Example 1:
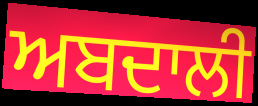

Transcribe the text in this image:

ਅਬਦਾਲੀ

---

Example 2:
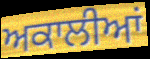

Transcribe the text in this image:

ਅਕਾਲੀਆਂ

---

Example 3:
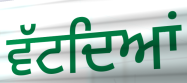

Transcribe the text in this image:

ਵੱਟਦਿਆਂ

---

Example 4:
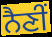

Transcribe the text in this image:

ਨੈਣੀਂ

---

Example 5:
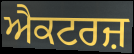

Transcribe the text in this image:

ਐਕਟਰਜ਼